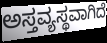
ಅಸ್ತವ್ಯಸ್ಥವಾಗಿದೆ